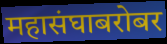
महासंघाबरोबर